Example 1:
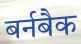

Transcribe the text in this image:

बर्नबैक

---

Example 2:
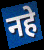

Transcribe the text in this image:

नहे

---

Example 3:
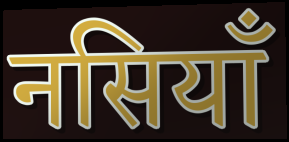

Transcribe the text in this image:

नसियाँ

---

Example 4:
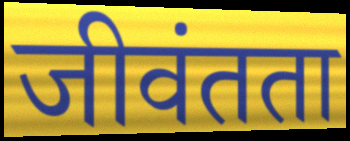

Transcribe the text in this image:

जीवंतता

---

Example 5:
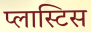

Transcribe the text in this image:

प्लास्टिस